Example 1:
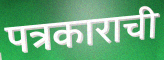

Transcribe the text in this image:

पत्रकाराची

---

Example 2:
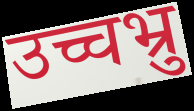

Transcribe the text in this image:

उच्चभ्रु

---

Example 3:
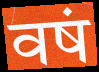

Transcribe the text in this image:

वषं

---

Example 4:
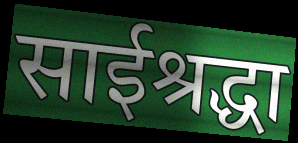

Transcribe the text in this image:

साईश्रद्धा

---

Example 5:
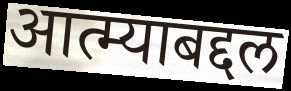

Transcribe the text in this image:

आत्म्याबद्दल